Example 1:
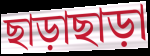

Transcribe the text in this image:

ছাড়াছাড়া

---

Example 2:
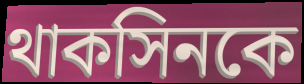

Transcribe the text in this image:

থাকসিনকে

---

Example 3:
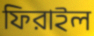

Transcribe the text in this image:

ফিরাইল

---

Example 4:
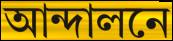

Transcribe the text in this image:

আন্দালনে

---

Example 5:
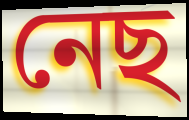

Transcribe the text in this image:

নেছ